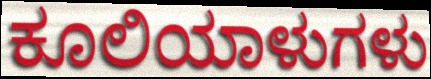
ಕೂಲಿಯಾಳುಗಳು